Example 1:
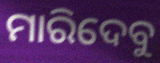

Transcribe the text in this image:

ମାରିଦେବୁ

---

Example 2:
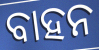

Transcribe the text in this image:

ବାହନ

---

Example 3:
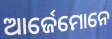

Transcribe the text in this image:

ଆର୍ଜେମୋନେ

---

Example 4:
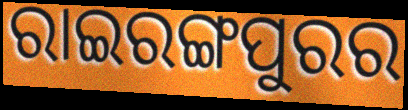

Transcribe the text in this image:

ରାଇରଙ୍ଗପୁରର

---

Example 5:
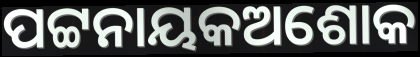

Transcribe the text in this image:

ପଟ୍ଟନାୟକଅଶୋକ